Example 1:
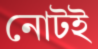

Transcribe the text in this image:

নোটই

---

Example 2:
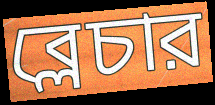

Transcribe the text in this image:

ব্লেচার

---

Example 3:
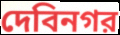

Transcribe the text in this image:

দেবিনগর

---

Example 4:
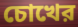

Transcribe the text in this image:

চোখের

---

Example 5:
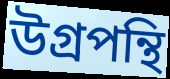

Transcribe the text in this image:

উগ্রপন্থি